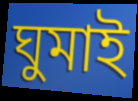
ঘুমাই